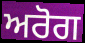
ਅਰੋਗ